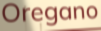
Oregano